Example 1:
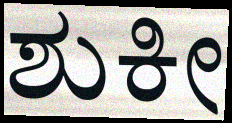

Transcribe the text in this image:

ಶುಕೀ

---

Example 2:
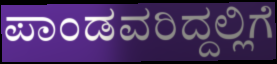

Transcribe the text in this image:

ಪಾಂಡವರಿದ್ದಲ್ಲಿಗೆ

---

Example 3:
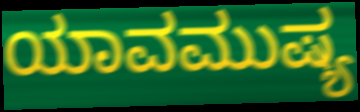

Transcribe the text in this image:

ಯಾವಮುಷ್ಯ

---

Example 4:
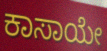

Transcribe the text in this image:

ಕಾಸಾಯೇ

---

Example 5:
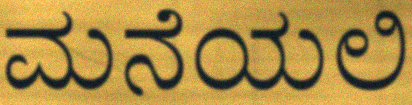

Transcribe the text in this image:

ಮನೆಯಲಿ